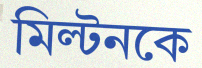
মিল্টনকে